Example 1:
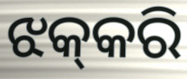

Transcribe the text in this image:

ଝକ୍‌କରି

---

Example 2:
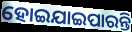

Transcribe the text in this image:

ହୋଇଯାଇପାରନ୍ତି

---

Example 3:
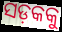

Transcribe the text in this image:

ସଡ଼କକୁ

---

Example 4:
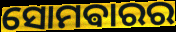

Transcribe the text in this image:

ସୋମଵାରର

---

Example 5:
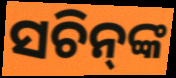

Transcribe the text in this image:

ସଚିନ୍‌ଙ୍କ